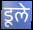
डूले